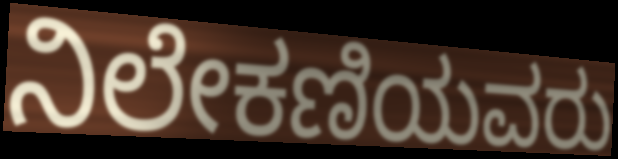
ನಿಲೇಕಣಿಯವರು